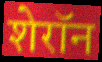
शेरॉन